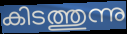
കിടത്തുന്നു